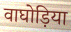
वाघोड़िया